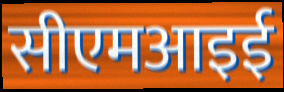
सीएमआइई